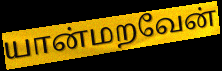
யான்மறவேன்